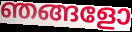
ഞങ്ങളോ